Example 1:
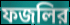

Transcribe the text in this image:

ফজলির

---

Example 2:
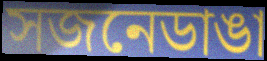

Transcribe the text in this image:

সজনেডাঙা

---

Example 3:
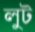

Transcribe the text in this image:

লুট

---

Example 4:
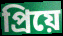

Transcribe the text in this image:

প্রিয়ে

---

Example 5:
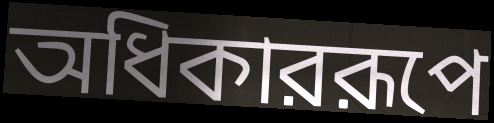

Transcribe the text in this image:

অধিকাররূপে